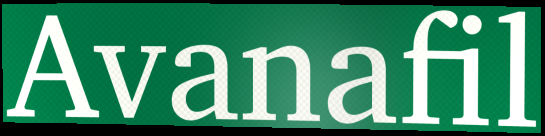
Avanafil